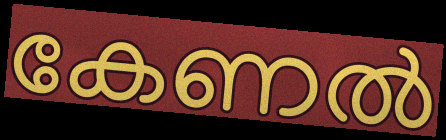
കേണൽ